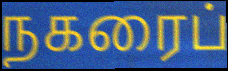
நகரைப்